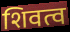
शिवत्व